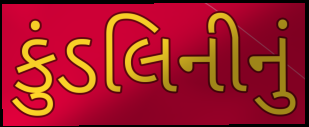
કુંડલિનીનું